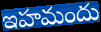
ఇహమందు